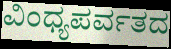
ವಿಂಧ್ಯಪರ್ವತದ